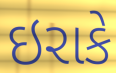
ઇરાકે